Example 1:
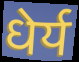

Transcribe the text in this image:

धेर्य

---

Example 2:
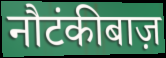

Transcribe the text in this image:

नौटंकीबाज़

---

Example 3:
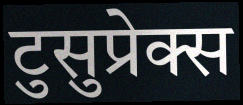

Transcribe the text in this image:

टुसुप्रेक्स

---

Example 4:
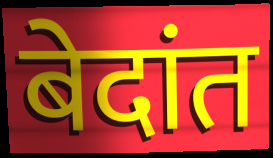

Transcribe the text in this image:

बेदांत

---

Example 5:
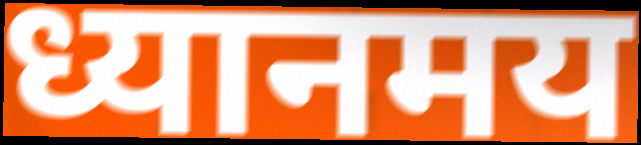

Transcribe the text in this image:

ध्यानमय